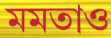
মমতাও